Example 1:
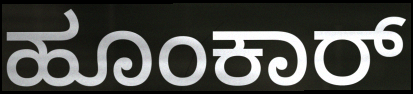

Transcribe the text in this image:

ಹೂಂಕಾರ್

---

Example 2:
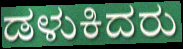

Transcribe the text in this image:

ಡಳುಕಿದರು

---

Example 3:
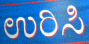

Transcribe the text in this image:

ಉರಿಸಿ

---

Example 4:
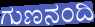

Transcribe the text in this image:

ಗುಣನಂದಿ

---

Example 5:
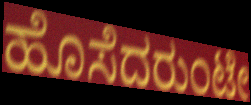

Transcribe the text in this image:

ಹೊಸೆದರುಂಟೇ